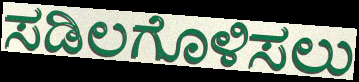
ಸಡಿಲಗೊಳಿಸಲು